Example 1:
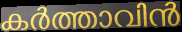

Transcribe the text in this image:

കർത്താവിൻ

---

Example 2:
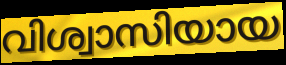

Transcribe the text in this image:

വിശ്വാസിയായ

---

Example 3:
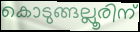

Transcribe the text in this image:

കൊടുങ്ങല്ലൂരിന്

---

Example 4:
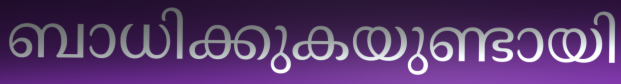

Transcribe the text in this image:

ബാധിക്കുകയുണ്ടായി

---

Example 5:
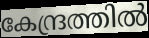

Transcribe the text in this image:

കേന്ദ്രത്തിൽ